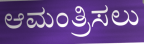
ಆಮಂತ್ರಿಸಲು